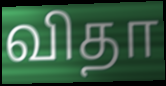
விதா